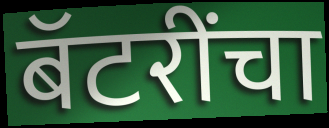
बॅटरींचा